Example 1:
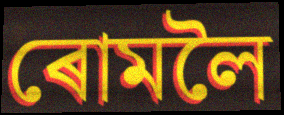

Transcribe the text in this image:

ৰোমলৈ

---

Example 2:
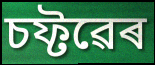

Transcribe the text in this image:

চফ্টৱেৰ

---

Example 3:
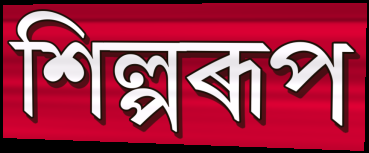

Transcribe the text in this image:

শিল্পৰূপ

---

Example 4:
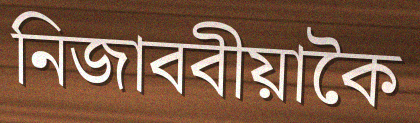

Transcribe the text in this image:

নিজাববীয়াকৈ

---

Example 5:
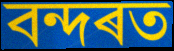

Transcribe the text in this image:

বন্দৰত